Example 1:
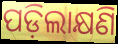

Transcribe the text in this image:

ପଡ଼ିଲାକ୍ଷଣି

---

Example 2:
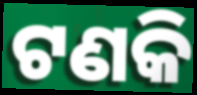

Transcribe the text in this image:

ଟଣକି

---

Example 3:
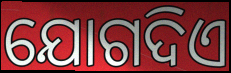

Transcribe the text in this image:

ଯୋଗଦିଏ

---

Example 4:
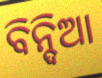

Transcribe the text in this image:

ବିନ୍ଦିଆ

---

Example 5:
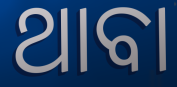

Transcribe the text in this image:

ଥାବା